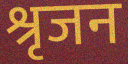
श्रृजन